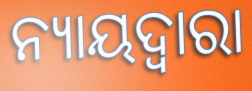
ନ୍ୟାୟଦ୍ୱାରା